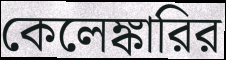
কেলেঙ্কারির